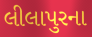
લીલાપુરના